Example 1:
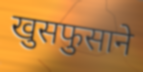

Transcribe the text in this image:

खुसफुसाने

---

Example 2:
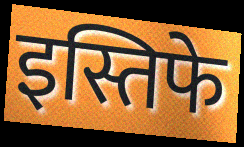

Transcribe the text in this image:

इस्तिफे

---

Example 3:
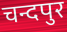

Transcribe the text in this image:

चन्दपुर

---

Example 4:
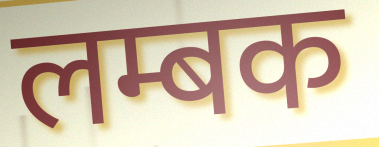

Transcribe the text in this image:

लम्बक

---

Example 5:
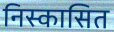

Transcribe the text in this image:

निस्कासित